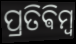
ପ୍ରତିଵିମ୍ବ